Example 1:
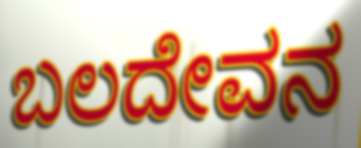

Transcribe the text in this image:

ಬಲದೇವನ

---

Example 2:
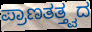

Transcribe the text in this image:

ಪ್ರಾಣತತ್ತ್ವದ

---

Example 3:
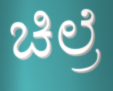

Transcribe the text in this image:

ಚಿಲ್ರೆ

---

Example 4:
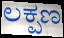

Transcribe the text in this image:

ಲಕ್ಪಣ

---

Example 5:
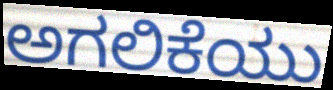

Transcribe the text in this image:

ಅಗಲಿಕೆಯು